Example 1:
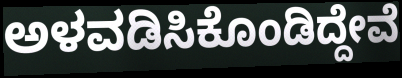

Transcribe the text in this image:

ಅಳವಡಿಸಿಕೊಂಡಿದ್ದೇವೆ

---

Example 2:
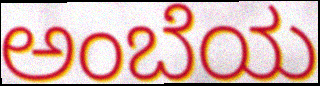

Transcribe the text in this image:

ಅಂಬೆಯ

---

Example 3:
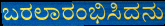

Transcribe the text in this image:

ಬರಲಾರಂಭಿಸಿದನು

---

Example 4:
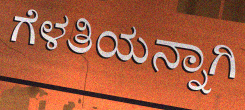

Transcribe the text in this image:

ಗೆಳತಿಯನ್ನಾಗಿ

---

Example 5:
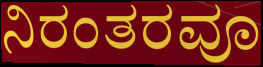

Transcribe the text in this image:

ನಿರಂತರವೂ